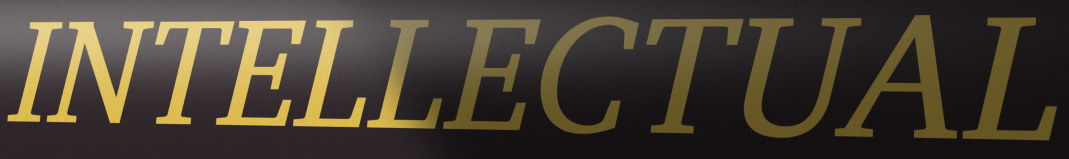
INTELLECTUAL